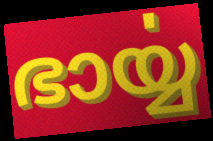
ഭാൎയ്യ